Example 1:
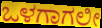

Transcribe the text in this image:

ಒಳಗಾಗಲೀ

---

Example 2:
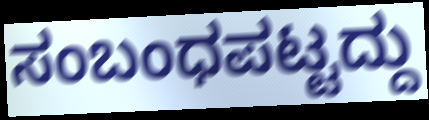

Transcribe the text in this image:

ಸಂಬಂಧಪಟ್ಟದ್ದು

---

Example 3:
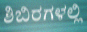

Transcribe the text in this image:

ಶಿಬಿರಗಳಲ್ಲಿ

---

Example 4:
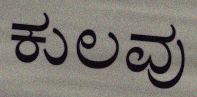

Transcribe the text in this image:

ಕುಲವು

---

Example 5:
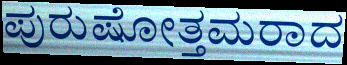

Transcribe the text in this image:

ಪುರುಷೋತ್ತಮರಾದ